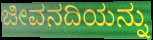
ಜೀವನದಿಯನ್ನು